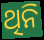
ଥିନି